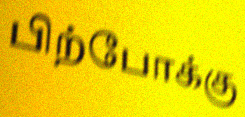
பிற்போக்கு